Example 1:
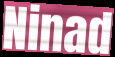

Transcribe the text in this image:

Ninad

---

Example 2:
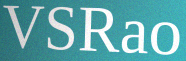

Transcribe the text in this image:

VSRao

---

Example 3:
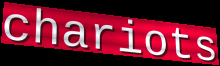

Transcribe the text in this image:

chariots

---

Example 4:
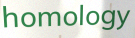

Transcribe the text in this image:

homology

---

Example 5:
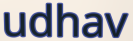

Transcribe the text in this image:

udhav